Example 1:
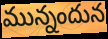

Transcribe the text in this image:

మున్నందున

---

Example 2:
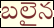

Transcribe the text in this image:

బలైన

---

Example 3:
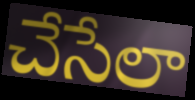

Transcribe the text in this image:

చేసేలా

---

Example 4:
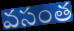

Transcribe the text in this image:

వసంత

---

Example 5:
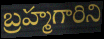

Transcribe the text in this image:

బ్రహ్మగారిని